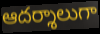
ఆదర్శాలుగా